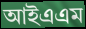
আইএএম